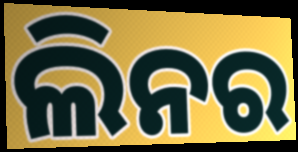
ଲିନର